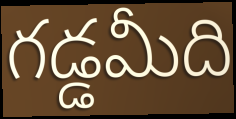
గడ్డమీది